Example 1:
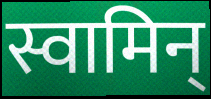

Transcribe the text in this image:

स्वामिन्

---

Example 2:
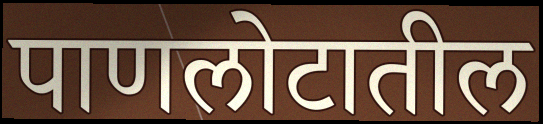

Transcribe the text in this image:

पाणलोटातील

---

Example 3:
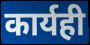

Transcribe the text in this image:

कार्यही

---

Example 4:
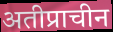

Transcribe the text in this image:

अतीप्राचीन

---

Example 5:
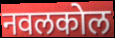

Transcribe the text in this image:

नवलकोल